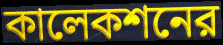
কালেকশনের